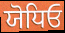
ਯੋਧਿਓ